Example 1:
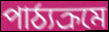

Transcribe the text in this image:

পাঠ্যক্রমে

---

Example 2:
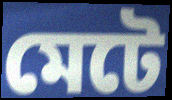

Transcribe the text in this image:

মেটে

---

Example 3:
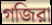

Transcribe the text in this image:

গজিরা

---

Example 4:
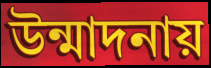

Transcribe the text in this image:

উন্মাদনায়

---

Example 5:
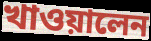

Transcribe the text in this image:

খাওয়ালেন